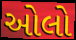
ઓલો